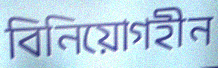
বিনিয়োগহীন